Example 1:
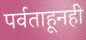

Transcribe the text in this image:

पर्वताहूनही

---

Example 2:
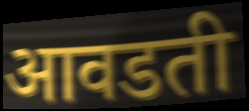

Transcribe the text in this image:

आवडती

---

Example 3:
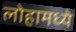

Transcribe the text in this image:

लोहामध्ये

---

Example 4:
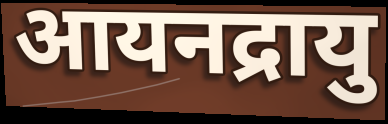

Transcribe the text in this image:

आयनद्रायु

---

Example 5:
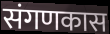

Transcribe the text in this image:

संगणकास